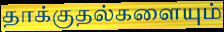
தாக்குதல்களையும்